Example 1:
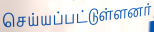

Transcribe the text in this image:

செய்யப்பட்டுள்ளனர்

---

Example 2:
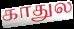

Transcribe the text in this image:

காதுல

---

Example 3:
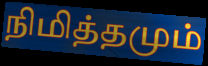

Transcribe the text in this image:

நிமித்தமும்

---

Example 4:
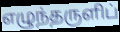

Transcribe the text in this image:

எழுந்தருளிப்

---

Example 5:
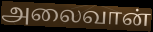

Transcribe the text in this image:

அலைவான்